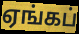
ஏங்கப்